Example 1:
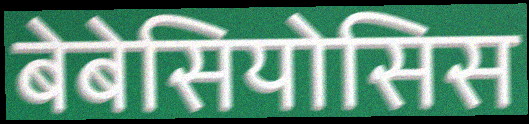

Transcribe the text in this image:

बेबेसियोसिस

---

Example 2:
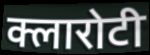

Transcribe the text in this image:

क्लारोटी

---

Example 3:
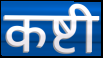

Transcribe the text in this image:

कष्टी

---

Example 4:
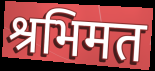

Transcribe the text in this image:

श्रभिमत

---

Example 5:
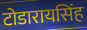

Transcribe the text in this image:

टोडारायसिंह